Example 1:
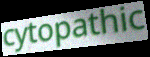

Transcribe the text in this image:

cytopathic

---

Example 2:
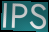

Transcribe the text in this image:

IPS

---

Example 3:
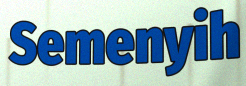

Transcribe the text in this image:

Semenyih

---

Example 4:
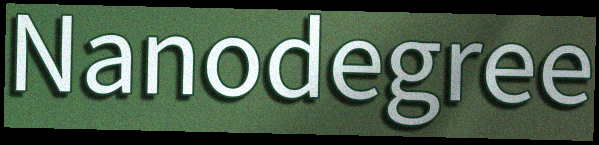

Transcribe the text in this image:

Nanodegree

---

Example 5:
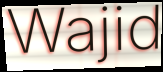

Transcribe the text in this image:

Wajid